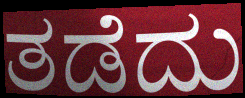
ತಡೆದು